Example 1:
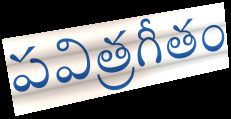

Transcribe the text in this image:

పవిత్రగీతం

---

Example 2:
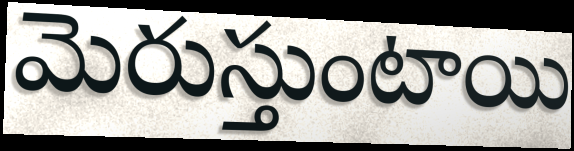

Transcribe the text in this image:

మెరుస్తుంటాయి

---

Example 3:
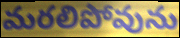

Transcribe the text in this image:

మరలిపోవును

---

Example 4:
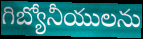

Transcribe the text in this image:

గిబ్యోనీయులను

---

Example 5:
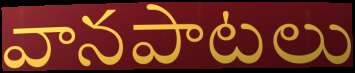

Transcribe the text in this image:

వానపాటలు